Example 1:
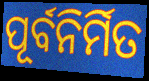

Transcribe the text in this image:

ପୂର୍ବନିର୍ମିତ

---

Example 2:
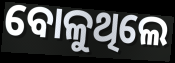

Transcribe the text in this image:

ବୋଳୁଥିଲେ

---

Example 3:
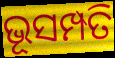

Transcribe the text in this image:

ଭୂସମ୍ପତି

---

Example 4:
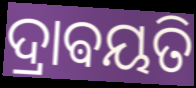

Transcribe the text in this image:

ଦ୍ରାଵୟତି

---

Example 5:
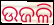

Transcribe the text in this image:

ଉଜଳି